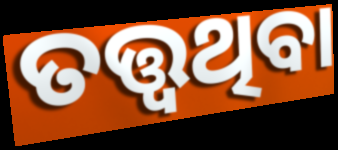
ତତ୍ତ୍ୱଥିବା